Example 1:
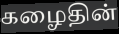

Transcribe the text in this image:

கழைதின்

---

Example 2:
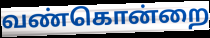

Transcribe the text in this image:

வண்கொன்றை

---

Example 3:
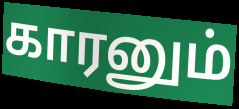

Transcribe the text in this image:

காரனும்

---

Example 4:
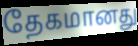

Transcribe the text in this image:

தேகமானது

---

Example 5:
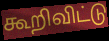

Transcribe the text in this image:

கூறிவிட்டு